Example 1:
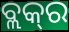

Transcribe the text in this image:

ବ୍ଲକ୍‍ର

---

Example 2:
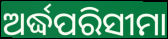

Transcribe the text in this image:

ଅର୍ଦ୍ଧପରିସୀମା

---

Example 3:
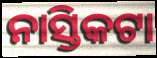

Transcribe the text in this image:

ନାସ୍ତିକଟା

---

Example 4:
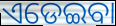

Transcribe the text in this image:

ଏଡେଇବା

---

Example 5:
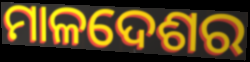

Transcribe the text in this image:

ମାଳଦେଶର